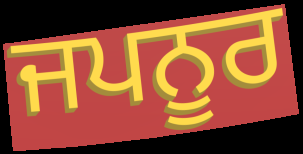
ਜਪਨੂਰ